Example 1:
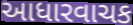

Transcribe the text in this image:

આધારવાચક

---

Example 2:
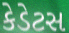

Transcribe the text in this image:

કેડેટસ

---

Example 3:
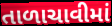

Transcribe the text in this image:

તાળાચાવીમાં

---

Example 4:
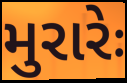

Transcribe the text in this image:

મુરારેઃ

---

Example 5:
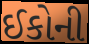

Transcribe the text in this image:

ઈકોની